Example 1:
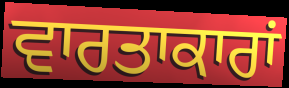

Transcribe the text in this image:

ਵਾਰਤਾਕਾਰਾਂ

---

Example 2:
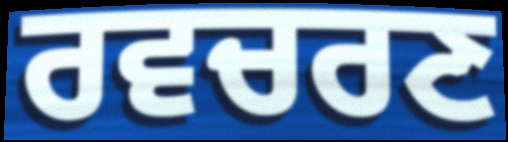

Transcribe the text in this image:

ਰਵਚਰਣ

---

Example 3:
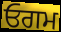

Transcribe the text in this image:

ਓਗਮ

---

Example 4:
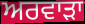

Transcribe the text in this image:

ਅਰਵਾੜਾ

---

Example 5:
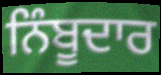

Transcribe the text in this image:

ਨਿੰਬੂਦਾਰ